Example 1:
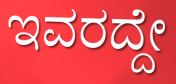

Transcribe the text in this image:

ಇವರದ್ದೇ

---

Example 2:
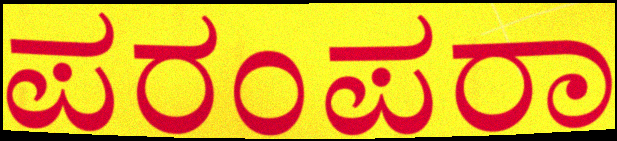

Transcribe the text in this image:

ಪರಂಪರಾ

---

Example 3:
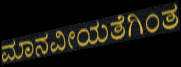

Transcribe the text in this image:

ಮಾನವೀಯತೆಗಿಂತ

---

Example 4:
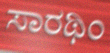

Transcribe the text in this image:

ಸಾರಥಿಂ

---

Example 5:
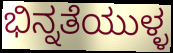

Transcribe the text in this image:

ಭಿನ್ನತೆಯುಳ್ಳ